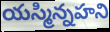
యస్మిన్నహని